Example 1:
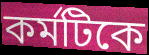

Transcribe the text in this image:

কর্মটিকে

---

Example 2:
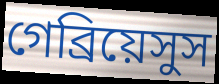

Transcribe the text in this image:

গেব্রিয়েসুস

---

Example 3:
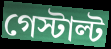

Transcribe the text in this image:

গেস্টাল্ট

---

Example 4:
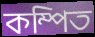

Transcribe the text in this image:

কম্পিত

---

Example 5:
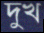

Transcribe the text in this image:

দুখ